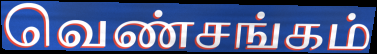
வெண்சங்கம்